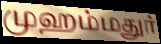
முஹம்மதுர்